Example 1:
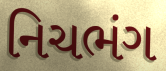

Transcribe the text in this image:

નિચભંગ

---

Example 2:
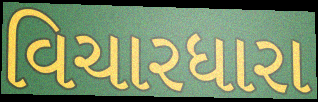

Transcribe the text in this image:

વિચારધારા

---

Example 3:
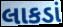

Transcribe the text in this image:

લાકડાં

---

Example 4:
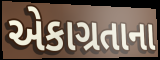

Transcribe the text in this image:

એકાગ્રતાના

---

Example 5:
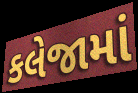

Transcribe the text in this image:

કલેજામાં